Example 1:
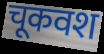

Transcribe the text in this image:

चूकवश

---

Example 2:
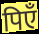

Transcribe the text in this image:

पिएँ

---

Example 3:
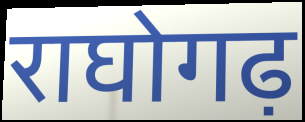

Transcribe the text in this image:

राघोगढ़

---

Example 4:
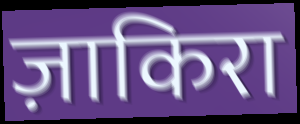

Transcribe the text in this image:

ज़ाकिरा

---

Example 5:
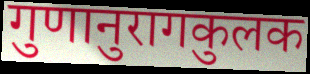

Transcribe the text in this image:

गुणानुरागकुलक